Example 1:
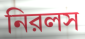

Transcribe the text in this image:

নিরলস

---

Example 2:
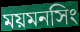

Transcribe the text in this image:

ময়মনসিং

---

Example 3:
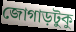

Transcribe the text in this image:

জোগাড়টুকু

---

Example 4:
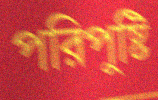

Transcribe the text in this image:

পরিপুষ্টি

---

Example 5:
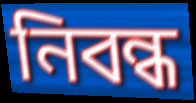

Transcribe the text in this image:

নিবন্ধ